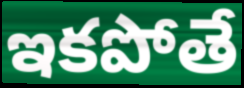
ఇకపోతే